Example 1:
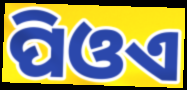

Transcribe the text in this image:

ପିଓଏ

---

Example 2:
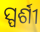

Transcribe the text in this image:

ସ୍ପର୍ଶୀ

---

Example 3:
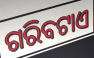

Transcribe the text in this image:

ଗରିବଟାଏ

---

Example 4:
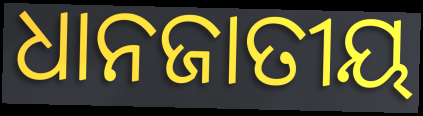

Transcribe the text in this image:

ଧାନଜାତୀୟ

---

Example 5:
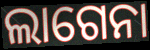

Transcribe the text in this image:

ଲାଗେନା